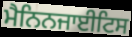
ਮੈਨਿਨਜਾਈਟਿਸ